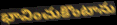
భావించుకొంటాను